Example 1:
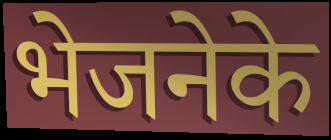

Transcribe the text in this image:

भेजनेके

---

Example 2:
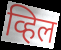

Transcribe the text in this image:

व्हिल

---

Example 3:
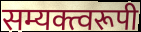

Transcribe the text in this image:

सम्यक्त्वरूपी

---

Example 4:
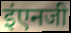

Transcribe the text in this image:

इंएनजी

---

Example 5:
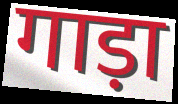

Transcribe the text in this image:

गाड़ा